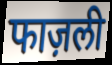
फाज़ली